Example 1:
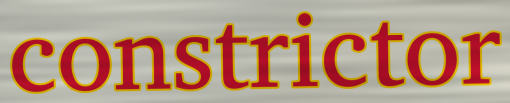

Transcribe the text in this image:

constrictor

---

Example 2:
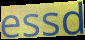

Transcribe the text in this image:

essd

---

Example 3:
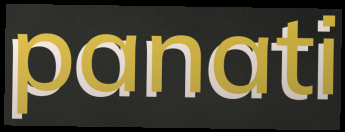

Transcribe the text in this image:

panati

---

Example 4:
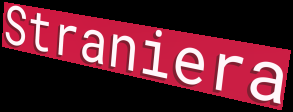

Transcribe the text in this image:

Straniera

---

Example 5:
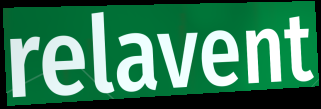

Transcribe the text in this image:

relavent